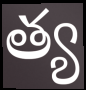
త్య